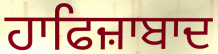
ਹਾਫਿਜ਼ਾਬਾਦ